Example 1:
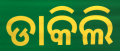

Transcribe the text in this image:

ଡାକିଲି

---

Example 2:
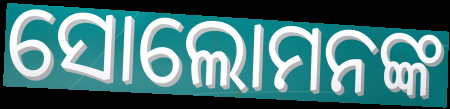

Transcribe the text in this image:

ସୋଲୋମନଙ୍କ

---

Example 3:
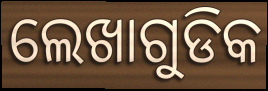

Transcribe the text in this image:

ଲେଖାଗୁଡିକ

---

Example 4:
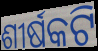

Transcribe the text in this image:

ଶୀର୍ଷକଟି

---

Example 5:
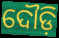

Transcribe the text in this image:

ଦୌଡ଼ି